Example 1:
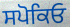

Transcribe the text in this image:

ਸਪੋਕਿਓ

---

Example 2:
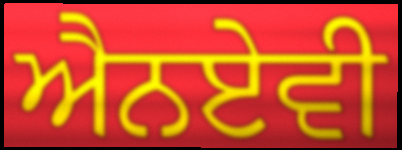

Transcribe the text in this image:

ਐਨਏਵੀ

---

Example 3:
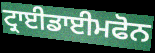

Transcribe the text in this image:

ਟ੍ਰਾਈਡਾਈਮਫੋਨ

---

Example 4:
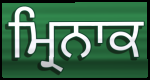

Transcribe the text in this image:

ਮ੍ਰਿਨਾਕ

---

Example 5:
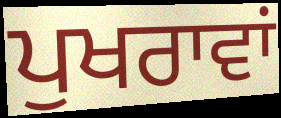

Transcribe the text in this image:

ਪੁਖਰਾਵਾਂ